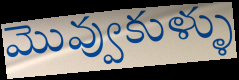
మొవ్వుకుళ్ళు